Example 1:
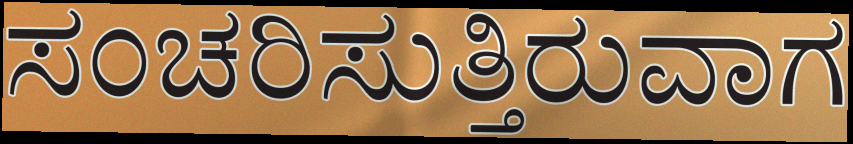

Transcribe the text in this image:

ಸಂಚರಿಸುತ್ತಿರುವಾಗ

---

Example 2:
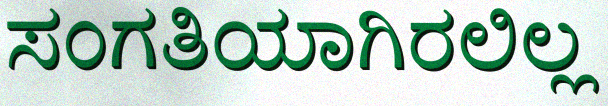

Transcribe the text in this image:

ಸಂಗತಿಯಾಗಿರಲಿಲ್ಲ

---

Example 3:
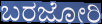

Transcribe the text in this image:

ಬರಜೋರಿ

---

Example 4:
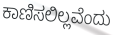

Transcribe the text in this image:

ಕಾಣಿಸಲಿಲ್ಲವೆಂದು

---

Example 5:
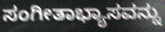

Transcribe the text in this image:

ಸಂಗೀತಾಭ್ಯಾಸವನ್ನು